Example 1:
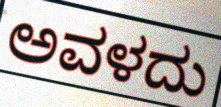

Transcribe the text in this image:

ಅವಳದು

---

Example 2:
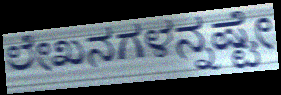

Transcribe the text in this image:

ಲೇಖನಗಳನ್ನಷ್ಟೇ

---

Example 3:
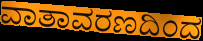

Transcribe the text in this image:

ವಾತಾವರಣದಿಂದ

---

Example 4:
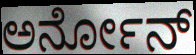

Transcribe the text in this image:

ಅರ್ನೋನ್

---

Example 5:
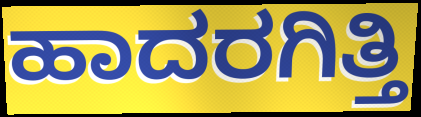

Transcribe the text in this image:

ಹಾದರಗಿತ್ತಿ